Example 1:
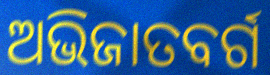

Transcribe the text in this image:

ଅଭିଜାତବର୍ଗ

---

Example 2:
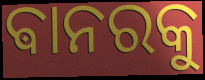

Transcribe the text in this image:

ଵାନରକୁ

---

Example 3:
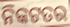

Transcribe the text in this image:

ନିକଟତର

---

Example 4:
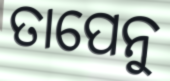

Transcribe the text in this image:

ତାପେନୁ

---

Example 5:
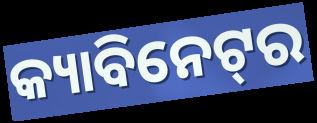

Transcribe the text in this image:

କ୍ୟାବିନେଟ୍‌ର